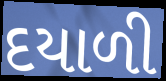
દયાળી